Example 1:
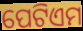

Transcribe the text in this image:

ପେଟିଏମ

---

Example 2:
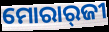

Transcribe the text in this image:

ମୋରାର୍‌ଜୀ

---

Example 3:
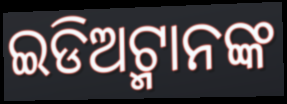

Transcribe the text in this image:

ଇଡିଅଟ୍ମାନଙ୍କ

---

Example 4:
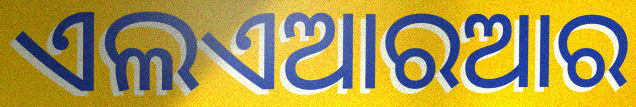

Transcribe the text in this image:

ଏଲଏଆରଆର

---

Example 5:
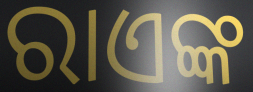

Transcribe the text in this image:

ରାଏଙ୍କ